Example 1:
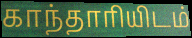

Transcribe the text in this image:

காந்தாரியிடம்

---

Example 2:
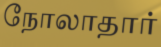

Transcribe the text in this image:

நோலாதார்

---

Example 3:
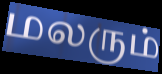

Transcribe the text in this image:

மலரும்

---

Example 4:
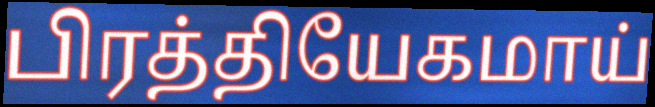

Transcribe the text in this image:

பிரத்தியேகமாய்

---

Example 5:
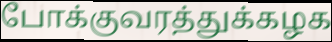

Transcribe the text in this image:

போக்குவரத்துக்கழக